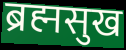
ब्रह्मसुख